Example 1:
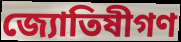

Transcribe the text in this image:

জ্যোতিষীগণ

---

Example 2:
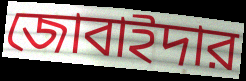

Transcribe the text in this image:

জোবাইদার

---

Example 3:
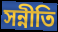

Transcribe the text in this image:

সন্নীতি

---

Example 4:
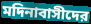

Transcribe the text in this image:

মদিনাবাসীদের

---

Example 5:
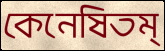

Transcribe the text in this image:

কেনেষিতম্